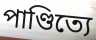
পাণ্ডিত্যে